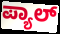
ಪ್ಯಾಲ್